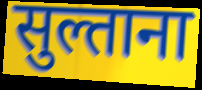
सुल्ताना